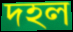
দহল